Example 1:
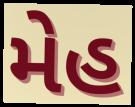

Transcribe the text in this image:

મેહ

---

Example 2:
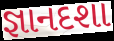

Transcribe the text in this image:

જ્ઞાનદશા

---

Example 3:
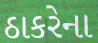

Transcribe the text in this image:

ઠાકરેના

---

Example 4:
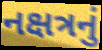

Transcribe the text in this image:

નક્ષત્રનું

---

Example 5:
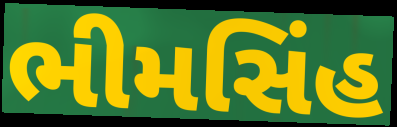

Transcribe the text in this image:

ભીમસિંહ